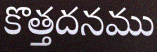
కొత్తదనము